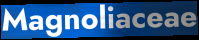
Magnoliaceae